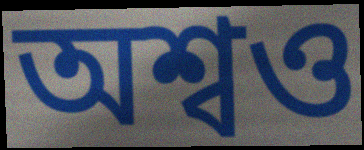
অশ্বও